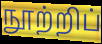
நூற்றிப்